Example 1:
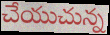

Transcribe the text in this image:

చేయుచున్న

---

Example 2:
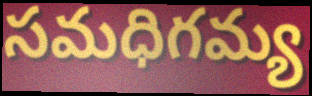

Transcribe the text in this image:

సమధిగమ్య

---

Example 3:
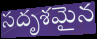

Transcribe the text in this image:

సదృశమైన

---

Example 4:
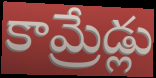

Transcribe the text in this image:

కామ్రేడ్లు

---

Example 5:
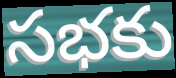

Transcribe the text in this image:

సభకు